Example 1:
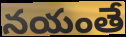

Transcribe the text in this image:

నయంతే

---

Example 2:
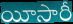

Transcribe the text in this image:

యీసారీ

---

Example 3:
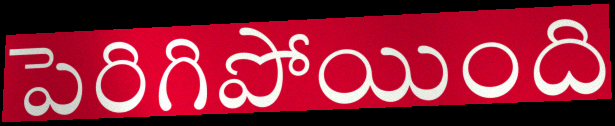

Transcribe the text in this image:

పెరిగిపోయింది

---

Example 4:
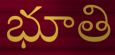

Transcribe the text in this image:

భూతి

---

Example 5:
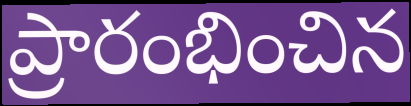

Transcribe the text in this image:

ప్రారంభించిన